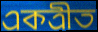
একত্ৰীত